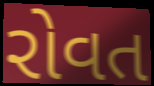
રોવત